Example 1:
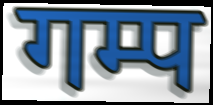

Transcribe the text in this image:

गम्प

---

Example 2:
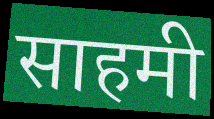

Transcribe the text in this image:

साहमी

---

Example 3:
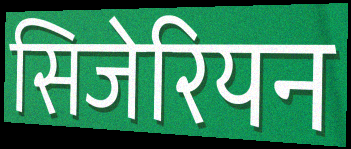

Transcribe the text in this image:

सिजेरियन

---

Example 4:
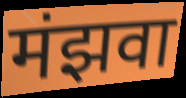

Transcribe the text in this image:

मंझवा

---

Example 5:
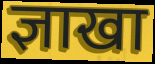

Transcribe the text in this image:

ज्ञाखा